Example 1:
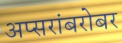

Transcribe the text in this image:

अप्सरांबरोबर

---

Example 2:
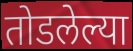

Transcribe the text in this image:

तोडलेल्या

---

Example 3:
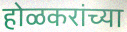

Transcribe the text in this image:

होळकरांच्या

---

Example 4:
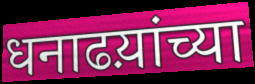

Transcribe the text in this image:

धनाढय़ांच्या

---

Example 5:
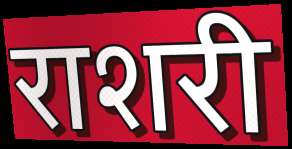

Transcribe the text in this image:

राशरी